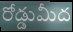
రోడ్డుమీద